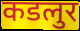
कडलुर